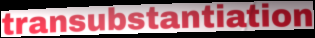
transubstantiation